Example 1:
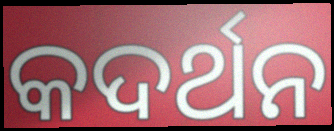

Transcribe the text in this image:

କଦର୍ଥନ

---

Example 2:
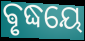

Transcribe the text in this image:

ଵୃଦ୍ଧୟେ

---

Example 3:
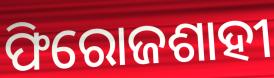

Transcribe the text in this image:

ଫିରୋଜଶାହୀ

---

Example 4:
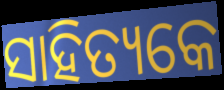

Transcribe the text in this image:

ସାହିତ୍ୟକେ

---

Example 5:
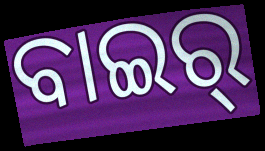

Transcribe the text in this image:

ବାଇର୍